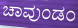
ಚಾವುಂಡಂ